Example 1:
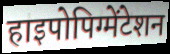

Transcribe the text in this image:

हाइपोपिग्मेंटेशन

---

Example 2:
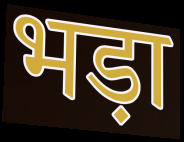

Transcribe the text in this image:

भड़ा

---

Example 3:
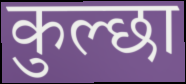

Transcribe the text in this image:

कुल्छा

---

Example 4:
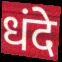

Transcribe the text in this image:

धंदे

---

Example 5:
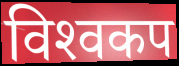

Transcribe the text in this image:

विश्‍वकप